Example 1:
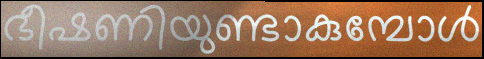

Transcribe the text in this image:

ഭീഷണിയുണ്ടാകുമ്പോൾ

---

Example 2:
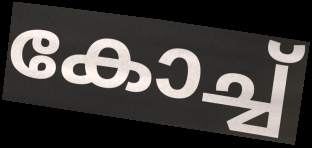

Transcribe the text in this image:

കോച്ച്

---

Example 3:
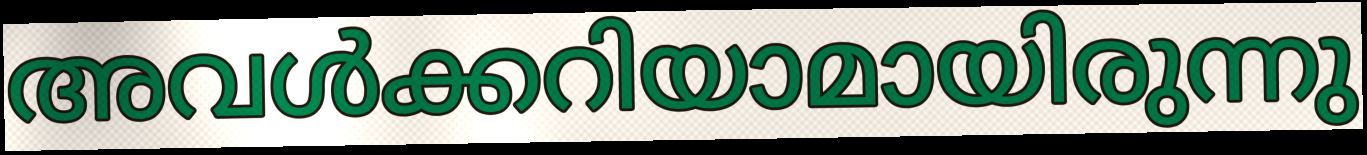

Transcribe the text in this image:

അവൾക്കറിയാമായിരുന്നു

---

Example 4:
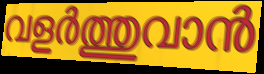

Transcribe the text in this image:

വളർത്തുവാൻ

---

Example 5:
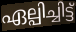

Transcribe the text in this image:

ഏല്പിച്ചിട്ട്